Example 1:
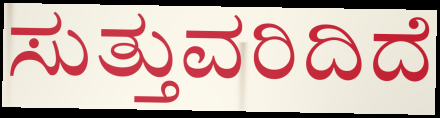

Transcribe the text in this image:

ಸುತ್ತುವರಿದಿದೆ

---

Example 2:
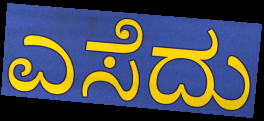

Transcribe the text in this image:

ಎಸೆದು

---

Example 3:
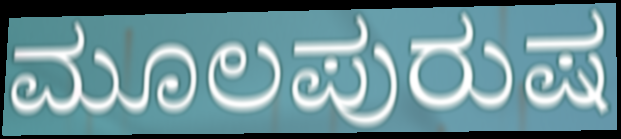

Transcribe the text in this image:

ಮೂಲಪುರುಷ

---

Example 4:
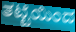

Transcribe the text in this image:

ತಟ್ಟೆಯಿಂದ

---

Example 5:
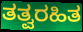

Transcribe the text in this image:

ತತ್ವರಹಿತ